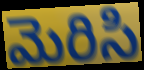
మెరిసి